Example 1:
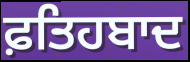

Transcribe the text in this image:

ਫ਼ਤਿਹਬਾਦ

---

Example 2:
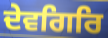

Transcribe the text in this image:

ਦੇਵਗਿਰਿ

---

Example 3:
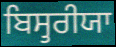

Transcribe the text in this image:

ਬਿਸ੍ਤਰੀਯਾ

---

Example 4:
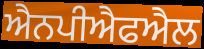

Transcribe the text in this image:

ਐਨਪੀਐਫਐਲ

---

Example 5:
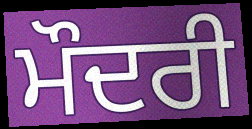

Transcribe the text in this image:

ਮੌਦਰੀ